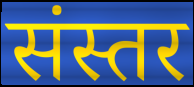
संस्तर